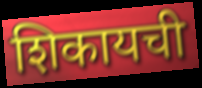
शिकायची